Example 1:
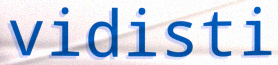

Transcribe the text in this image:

vidisti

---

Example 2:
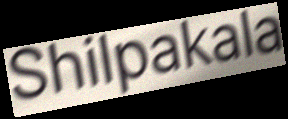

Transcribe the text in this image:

Shilpakala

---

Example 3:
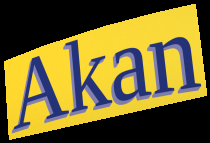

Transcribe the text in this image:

Akan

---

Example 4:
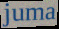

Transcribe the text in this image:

juma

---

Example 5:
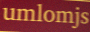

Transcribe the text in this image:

umlomjs